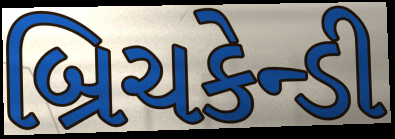
બ્રિચકેન્ડી